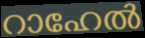
റാഹേൽ